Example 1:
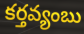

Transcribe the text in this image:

కర్తవ్యంబు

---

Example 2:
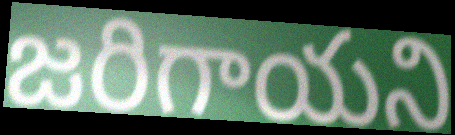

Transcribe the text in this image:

జరిగాయని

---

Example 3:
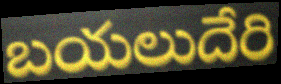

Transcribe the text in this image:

బయలుదేరి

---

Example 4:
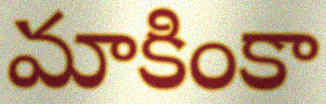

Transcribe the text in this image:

మాకింకా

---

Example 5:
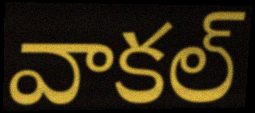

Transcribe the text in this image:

వాకల్